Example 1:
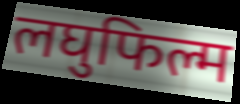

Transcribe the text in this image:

लघुफिल्म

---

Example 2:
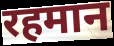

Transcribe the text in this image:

रहमान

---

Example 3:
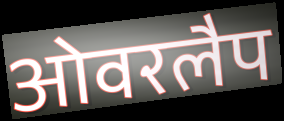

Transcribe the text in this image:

ओवरलैप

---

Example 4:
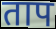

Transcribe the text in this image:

ताप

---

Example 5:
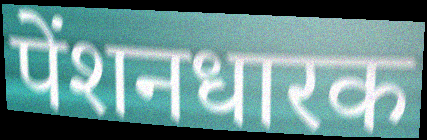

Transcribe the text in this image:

पेंशनधारक